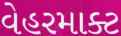
વેહરમાક્ટ